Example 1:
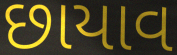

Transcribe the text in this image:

છાયાવ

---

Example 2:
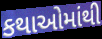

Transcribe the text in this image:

કથાઓમાંથી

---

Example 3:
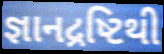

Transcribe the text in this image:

જ્ઞાનદ્રષ્ટિથી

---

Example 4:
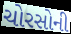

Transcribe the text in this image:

ચોરસોની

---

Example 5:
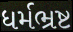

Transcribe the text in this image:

ધર્મભ્રષ્ટ